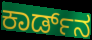
ಕಾರ್ಡ್‌ನ